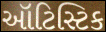
ઑટિસ્ટિક